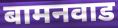
बामनवाड